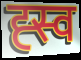
ह्स्व